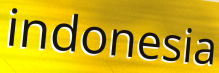
indonesia